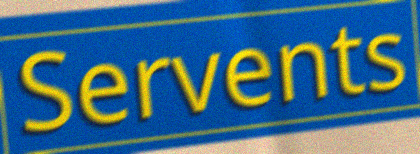
Servents